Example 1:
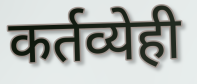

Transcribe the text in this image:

कर्तव्येही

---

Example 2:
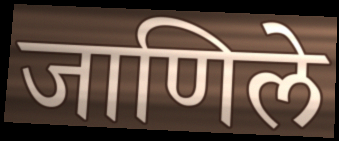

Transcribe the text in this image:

जाणिले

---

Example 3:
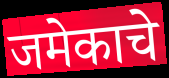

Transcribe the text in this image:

जमेकाचे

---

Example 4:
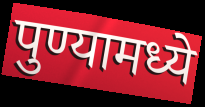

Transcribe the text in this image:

पुण्यामध्ये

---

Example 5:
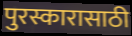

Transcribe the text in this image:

पुरस्कारासाठी